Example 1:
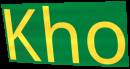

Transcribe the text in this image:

Kho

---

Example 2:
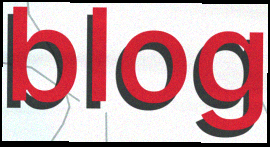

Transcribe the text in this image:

blog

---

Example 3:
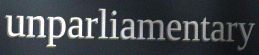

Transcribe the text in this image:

unparliamentary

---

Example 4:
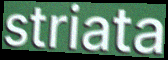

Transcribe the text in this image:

striata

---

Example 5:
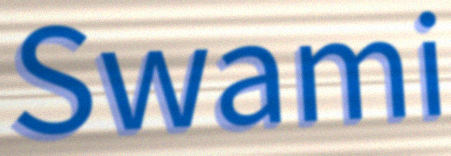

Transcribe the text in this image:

Swami